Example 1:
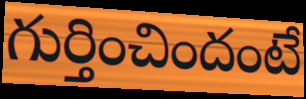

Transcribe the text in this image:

గుర్తించిందంటే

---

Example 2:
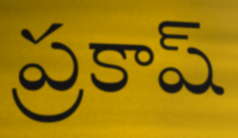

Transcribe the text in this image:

ప్రకాష్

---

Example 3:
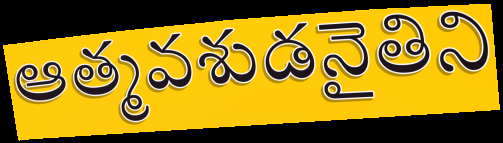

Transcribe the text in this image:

ఆత్మవశుడనైతిని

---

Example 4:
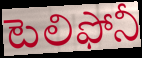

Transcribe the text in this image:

టెలిఫోనీ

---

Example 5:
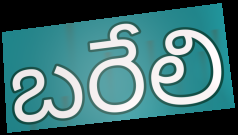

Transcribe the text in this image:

బరేలి